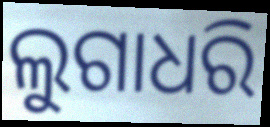
ଲୁଗାଧରି